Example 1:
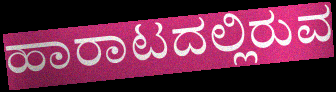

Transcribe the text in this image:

ಹಾರಾಟದಲ್ಲಿರುವ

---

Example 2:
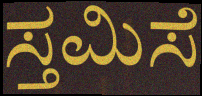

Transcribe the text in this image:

ಸ್ತಮಿಸೆ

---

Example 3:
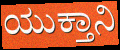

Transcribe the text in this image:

ಯುಕ್ತಾನಿ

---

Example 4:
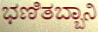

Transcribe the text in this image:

ಭಣಿತಬ್ಬಾನಿ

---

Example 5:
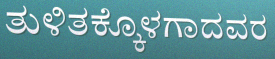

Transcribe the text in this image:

ತುಳಿತಕ್ಕೊಳಗಾದವರ